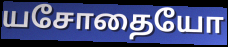
யசோதையோ